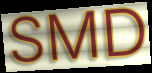
SMD